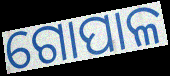
ଗୋପାଳ